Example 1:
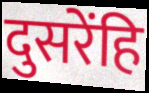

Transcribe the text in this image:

दुसरेंहि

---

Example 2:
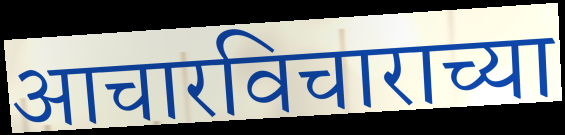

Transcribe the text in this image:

आचारविचाराच्या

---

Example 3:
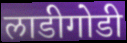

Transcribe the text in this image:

लाडीगोडी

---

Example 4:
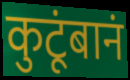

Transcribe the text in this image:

कुटूंबानं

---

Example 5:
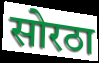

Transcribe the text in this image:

सोरठा